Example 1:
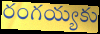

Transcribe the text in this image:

రంగయ్యకు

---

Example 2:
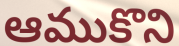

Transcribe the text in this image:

ఆముకొని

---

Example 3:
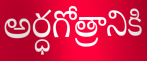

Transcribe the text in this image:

అర్ధగోత్రానికి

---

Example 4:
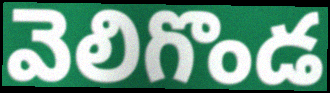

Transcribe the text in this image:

వెలిగొండ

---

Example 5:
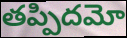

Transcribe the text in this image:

తప్పిదమో